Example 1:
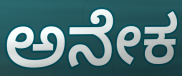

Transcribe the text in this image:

ಅನೇಕ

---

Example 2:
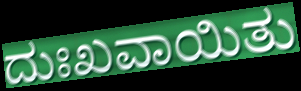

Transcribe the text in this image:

ದುಃಖವಾಯಿತು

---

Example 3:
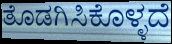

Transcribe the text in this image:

ತೊಡಗಿಸಿಕೊಳ್ಳದೆ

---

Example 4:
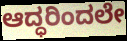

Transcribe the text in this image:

ಆದ್ಧರಿಂದಲೇ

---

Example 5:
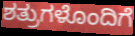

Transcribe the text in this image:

ಶತ್ರುಗಳೊಂದಿಗೆ